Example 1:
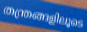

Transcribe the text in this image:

തന്ത്രങ്ങളിലൂടെ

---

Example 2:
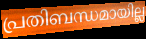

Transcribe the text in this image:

പ്രതിബന്ധമായില്ല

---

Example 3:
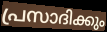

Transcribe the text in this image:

പ്രസാദിക്കും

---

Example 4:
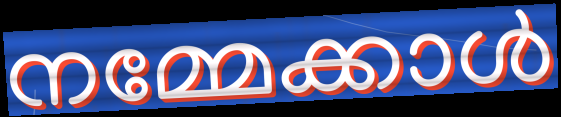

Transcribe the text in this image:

നമ്മേക്കാൾ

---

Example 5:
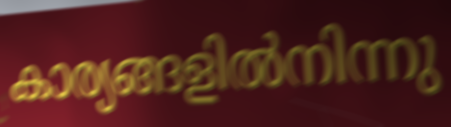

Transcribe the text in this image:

കാര്യങ്ങളിൽനിന്നു